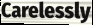
Carelessly